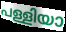
പള്ളിയാ